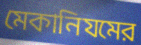
মেকানিযমের